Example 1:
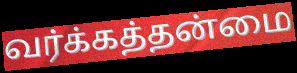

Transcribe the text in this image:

வர்க்கத்தன்மை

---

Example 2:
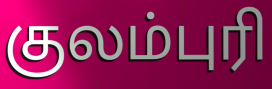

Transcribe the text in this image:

குலம்புரி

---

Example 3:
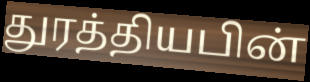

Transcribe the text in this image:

துரத்தியபின்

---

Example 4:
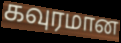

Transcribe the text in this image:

கவுரமான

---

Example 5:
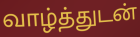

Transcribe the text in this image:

வாழ்த்துடன்